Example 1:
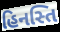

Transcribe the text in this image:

હિનસ્તિ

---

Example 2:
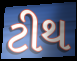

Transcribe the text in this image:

ટીથ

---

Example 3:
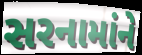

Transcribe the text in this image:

સરનામાંને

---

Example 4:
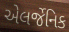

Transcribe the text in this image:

એલર્જેનિક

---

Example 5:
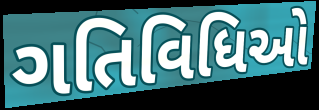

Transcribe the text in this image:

ગતિવિધિઓ